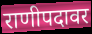
राणीपदावर